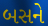
બસને